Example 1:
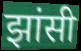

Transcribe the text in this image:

झांसी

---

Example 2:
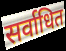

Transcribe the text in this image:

सर्वाधित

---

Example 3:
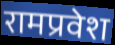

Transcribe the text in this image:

रामप्रवेश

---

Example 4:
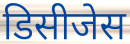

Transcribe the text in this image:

डिसीजेस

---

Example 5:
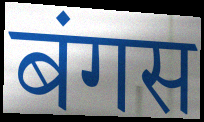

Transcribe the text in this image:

बंगस